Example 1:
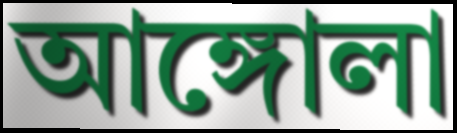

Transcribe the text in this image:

আঙ্গোলা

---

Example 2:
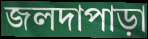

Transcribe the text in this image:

জলদাপাড়া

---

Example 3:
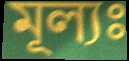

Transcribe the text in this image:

মূল্যঃ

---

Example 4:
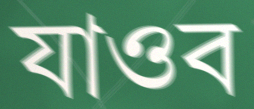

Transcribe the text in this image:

যাওব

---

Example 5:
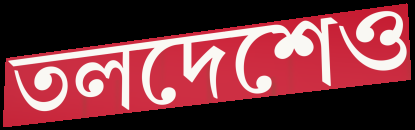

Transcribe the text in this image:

তলদেশেও